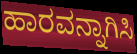
ಹಾರವನ್ನಾಗಿಸಿ